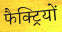
फैक्ट्रियों